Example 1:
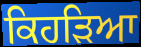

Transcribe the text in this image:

ਕਿਹੜਿਆ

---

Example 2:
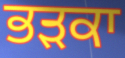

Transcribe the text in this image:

ਭੜਕਾ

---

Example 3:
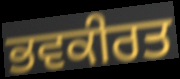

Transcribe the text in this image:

ਭਵਕੀਰਤ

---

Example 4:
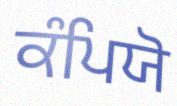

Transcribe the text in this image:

ਕੰਪਿਯੋ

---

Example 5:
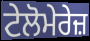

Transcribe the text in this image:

ਟੇਲੋਮੇਰੇਜ਼